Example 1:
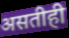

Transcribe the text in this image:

असतीही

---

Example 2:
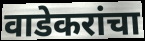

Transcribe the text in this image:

वाडेकरांचा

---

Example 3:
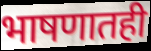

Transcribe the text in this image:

भाषणातही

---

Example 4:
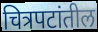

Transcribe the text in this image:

चित्रपटांतील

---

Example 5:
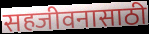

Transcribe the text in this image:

सहजीवनासाठी